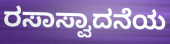
ರಸಾಸ್ವಾದನೆಯ